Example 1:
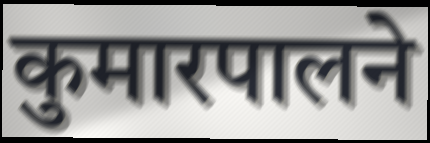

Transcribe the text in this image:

कुमारपालने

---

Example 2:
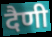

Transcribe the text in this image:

दैणी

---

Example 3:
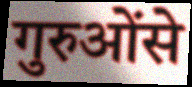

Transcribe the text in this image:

गुरुओंसे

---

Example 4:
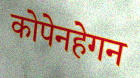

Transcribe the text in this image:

कोपेनहेगन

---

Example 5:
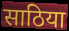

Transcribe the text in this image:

साठिया